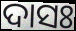
ଦାସଃ